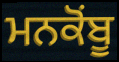
ਮਨਕੋਂਬੂ